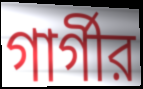
গার্গীর